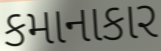
કમાનાકાર